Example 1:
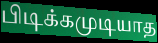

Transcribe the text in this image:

பிடிக்கமுடியாத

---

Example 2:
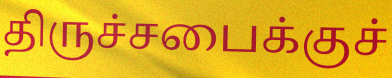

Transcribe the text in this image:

திருச்சபைக்குச்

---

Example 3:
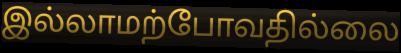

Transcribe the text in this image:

இல்லாமற்போவதில்லை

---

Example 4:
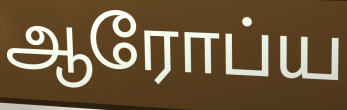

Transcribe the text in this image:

ஆரோப்ய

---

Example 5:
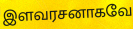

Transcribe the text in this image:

இளவரசனாகவே